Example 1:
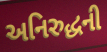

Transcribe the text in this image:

અનિરુદ્ધની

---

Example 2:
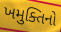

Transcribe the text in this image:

ખમુક્તિનો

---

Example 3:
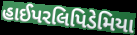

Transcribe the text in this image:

હાઈપરલિપિડેમિયા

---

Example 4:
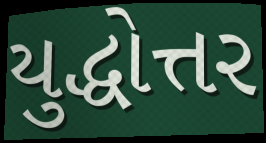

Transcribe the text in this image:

યુદ્ધોત્તર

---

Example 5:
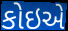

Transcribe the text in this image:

કોઇએ